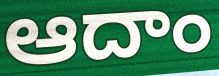
ఆదాం